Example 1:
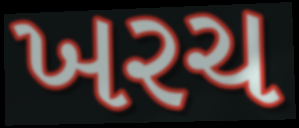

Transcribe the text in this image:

ખરચ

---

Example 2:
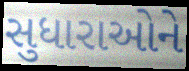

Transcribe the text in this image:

સુધારાઓને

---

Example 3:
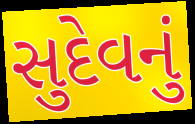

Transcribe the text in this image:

સુદેવનું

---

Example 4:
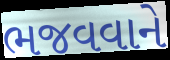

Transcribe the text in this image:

ભજવવાને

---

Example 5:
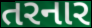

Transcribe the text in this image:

તરનાર